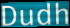
Dudh